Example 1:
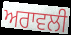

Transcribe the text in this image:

ਅਰਾਵਲੀ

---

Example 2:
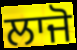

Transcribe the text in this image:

ਲਾਜੋ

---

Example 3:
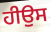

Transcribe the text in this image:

ਹੀਉਸ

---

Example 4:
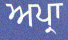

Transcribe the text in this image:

ਅਪ੍ਰਾ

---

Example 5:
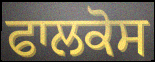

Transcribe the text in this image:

ਫਾਲਕੋਸ